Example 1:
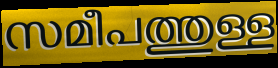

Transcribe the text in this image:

സമീപത്തുള്ള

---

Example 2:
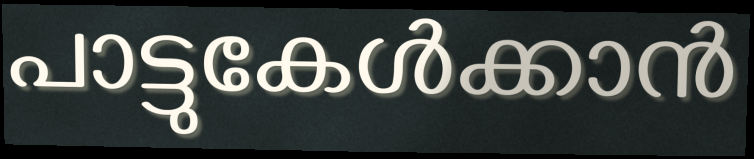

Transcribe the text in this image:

പാട്ടുകേൾക്കാൻ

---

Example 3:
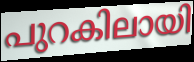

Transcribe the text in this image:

പുറകിലായി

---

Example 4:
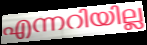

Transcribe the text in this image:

എന്നറിയില്ല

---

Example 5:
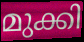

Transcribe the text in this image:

മുക്കി